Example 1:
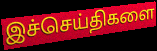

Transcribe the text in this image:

இச்செய்திகளை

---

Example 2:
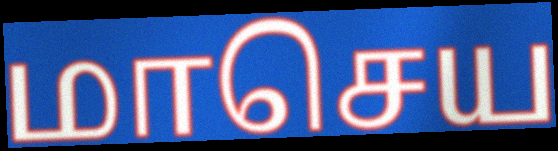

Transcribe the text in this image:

மாசெய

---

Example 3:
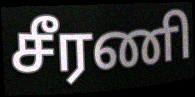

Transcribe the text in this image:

சீரணி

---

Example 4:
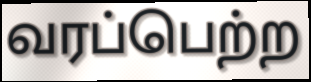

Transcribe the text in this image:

வரப்பெற்ற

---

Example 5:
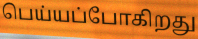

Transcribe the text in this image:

பெய்யப்போகிறது